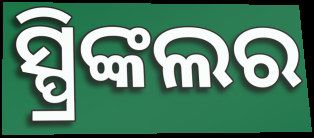
ସ୍ପ୍ରିଙ୍କଲର